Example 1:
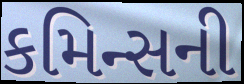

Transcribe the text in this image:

કમિન્સની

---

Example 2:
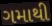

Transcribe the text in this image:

ગમાથી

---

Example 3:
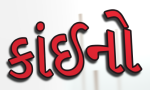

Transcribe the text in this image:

કાંઈનો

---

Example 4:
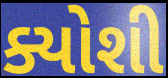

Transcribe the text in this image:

ક્યોશી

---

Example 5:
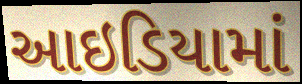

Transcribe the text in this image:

આઇડિયામાં